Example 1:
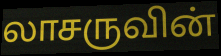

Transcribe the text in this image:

லாசருவின்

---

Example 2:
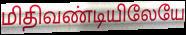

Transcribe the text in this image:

மிதிவண்டியிலேயே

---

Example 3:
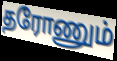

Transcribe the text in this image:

தரோணும்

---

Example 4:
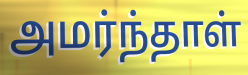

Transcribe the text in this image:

அமர்ந்தாள்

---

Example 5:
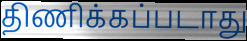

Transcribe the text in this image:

திணிக்கப்படாது